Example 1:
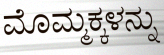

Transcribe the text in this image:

ಮೊಮ್ಮಕ್ಕಳನ್ನು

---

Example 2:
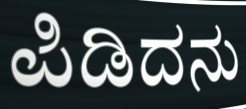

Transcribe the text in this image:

ಪಿಡಿದನು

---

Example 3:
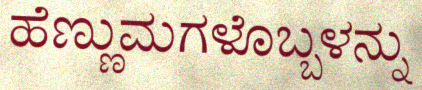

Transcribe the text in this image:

ಹೆಣ್ಣುಮಗಳೊಬ್ಬಳನ್ನು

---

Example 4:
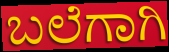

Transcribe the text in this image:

ಬಲೆಗಾಗಿ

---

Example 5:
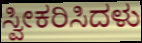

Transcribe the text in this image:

ಸ್ವೀಕರಿಸಿದಳು